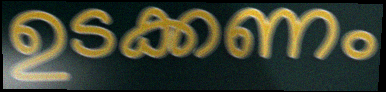
ഉടക്കണം